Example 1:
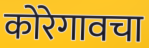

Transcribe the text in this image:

कोरेगावचा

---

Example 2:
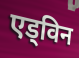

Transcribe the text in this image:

एड्विन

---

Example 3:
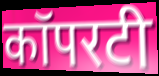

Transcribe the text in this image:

कॉपरटी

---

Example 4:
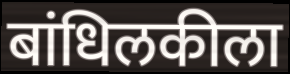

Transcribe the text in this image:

बांधिलकीला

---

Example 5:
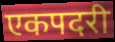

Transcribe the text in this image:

एकपदरी